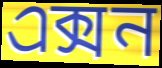
এক্সন